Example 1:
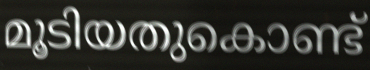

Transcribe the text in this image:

മൂടിയതുകൊണ്ട്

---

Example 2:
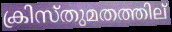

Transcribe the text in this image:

ക്രിസ്തുമതത്തില്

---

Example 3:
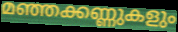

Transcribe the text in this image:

മഞ്ഞക്കണ്ണുകളും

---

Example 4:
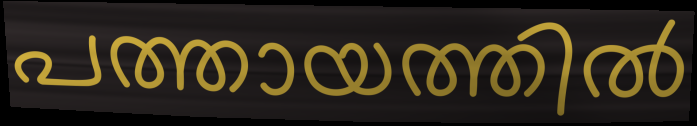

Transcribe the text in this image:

പത്തായത്തിൽ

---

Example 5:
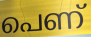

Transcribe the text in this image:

പെണ്